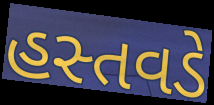
હસ્તવડે